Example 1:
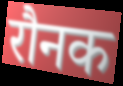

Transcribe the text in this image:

रौनक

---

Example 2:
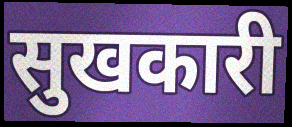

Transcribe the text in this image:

सुखकारी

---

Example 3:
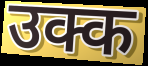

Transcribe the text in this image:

उक्क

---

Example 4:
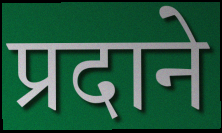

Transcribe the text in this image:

प्रदाने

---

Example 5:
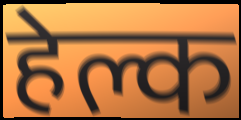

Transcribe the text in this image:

हेल्क